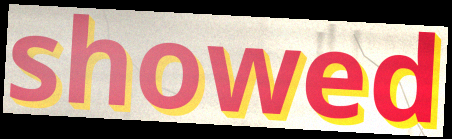
showed